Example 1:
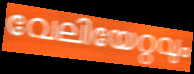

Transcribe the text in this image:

വേലിയേറ്റവും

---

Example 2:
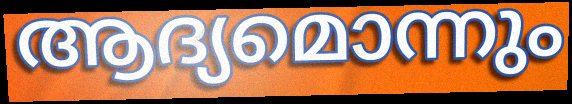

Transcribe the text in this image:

ആദ്യമൊന്നും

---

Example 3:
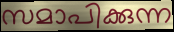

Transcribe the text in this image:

സമാപിക്കുന്ന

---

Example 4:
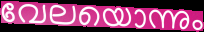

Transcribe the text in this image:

വേലയൊന്നും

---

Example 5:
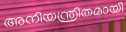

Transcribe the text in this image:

അനിയന്ത്രിതമായി